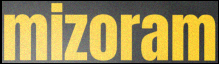
mizoram